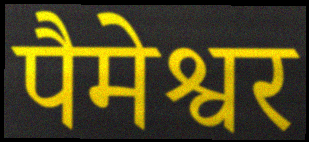
पैमेश्वर